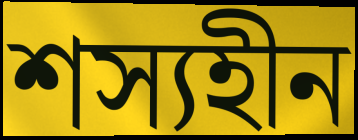
শস্যহীন